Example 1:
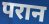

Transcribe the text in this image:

परान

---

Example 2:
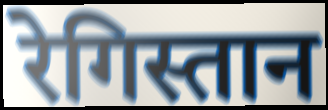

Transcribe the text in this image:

रेगिस्तान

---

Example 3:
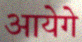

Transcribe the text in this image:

आयेगे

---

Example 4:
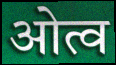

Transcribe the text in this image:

ओत्व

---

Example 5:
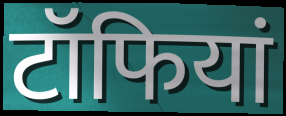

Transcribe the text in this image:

टॉफियां